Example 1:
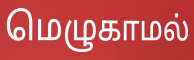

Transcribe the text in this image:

மெழுகாமல்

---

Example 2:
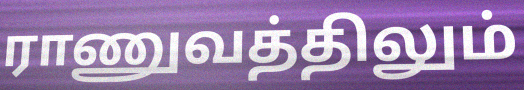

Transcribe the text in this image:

ராணுவத்திலும்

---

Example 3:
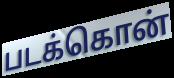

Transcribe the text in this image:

படக்கொன்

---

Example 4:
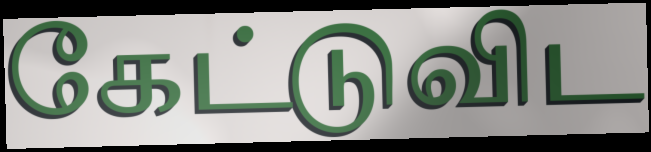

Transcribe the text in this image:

கேட்டுவிட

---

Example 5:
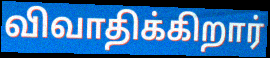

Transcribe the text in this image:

விவாதிக்கிறார்